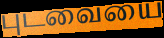
புடவையை